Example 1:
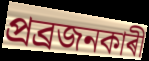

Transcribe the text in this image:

প্ৰব্ৰজনকাৰী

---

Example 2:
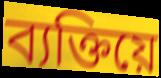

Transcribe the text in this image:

ব্যক্তিয়ে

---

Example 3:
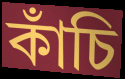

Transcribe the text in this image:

কাঁচি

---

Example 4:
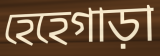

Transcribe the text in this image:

হেহেগাড়া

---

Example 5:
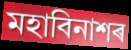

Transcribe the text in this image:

মহাবিনাশৰ